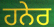
ਹਨੇਰ